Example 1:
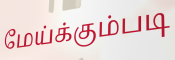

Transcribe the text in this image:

மேய்க்கும்படி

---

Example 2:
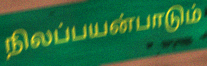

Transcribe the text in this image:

நிலப்பயன்பாடும்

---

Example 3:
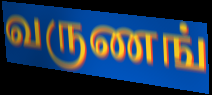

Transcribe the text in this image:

வருணங்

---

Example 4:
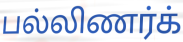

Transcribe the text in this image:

பல்லிணர்க்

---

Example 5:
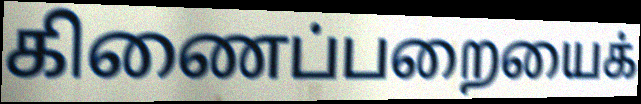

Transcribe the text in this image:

கிணைப்பறையைக்